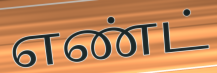
எண்ட்